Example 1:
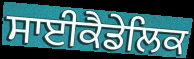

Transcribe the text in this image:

ਸਾਈਕੈਡੇਲਿਕ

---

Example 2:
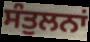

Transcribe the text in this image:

ਸੰਤੁਲਨਾਂ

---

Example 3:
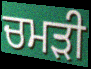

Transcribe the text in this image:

ਚਮਡ਼ੀ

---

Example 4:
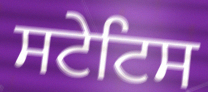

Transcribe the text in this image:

ਸਟੇਟਿਸ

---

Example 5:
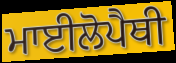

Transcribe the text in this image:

ਮਾਈਲੋਪੈਥੀ